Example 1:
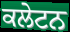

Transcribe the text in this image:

ਕਲੇਟਨ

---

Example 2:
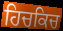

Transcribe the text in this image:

ਹਿਚਕਿਚ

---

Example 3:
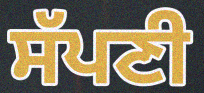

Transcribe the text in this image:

ਸੱਪਣੀ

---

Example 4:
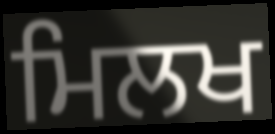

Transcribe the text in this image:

ਮਿਲਖ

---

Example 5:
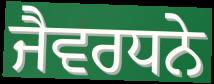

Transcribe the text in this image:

ਜੈਵਰਧਨੇ